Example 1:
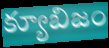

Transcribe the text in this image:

క్యూబిజం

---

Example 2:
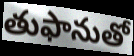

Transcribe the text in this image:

తుఫానుతో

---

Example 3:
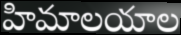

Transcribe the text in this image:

హిమాలయాల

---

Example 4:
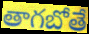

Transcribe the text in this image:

తాగబోతే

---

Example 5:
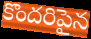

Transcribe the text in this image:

కొందరిపైన